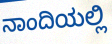
ನಾಂದಿಯಲ್ಲಿ